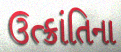
ઉત્ક્રાંતિના